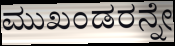
ಮುಖಂಡರನ್ನೇ